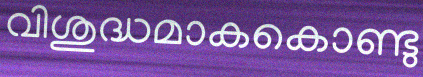
വിശുദ്ധമാകകൊണ്ടു